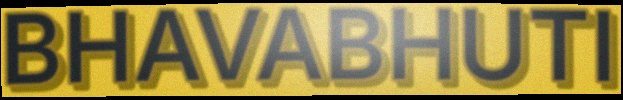
BHAVABHUTI